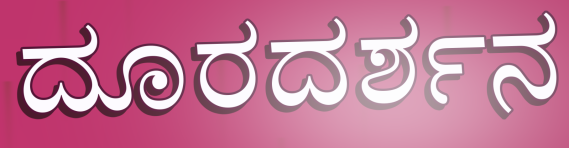
ದೂರದರ್ಶನ